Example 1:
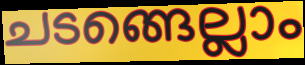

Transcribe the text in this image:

ചടങ്ങെല്ലാം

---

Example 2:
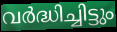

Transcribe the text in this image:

വർദ്ധിച്ചിട്ടും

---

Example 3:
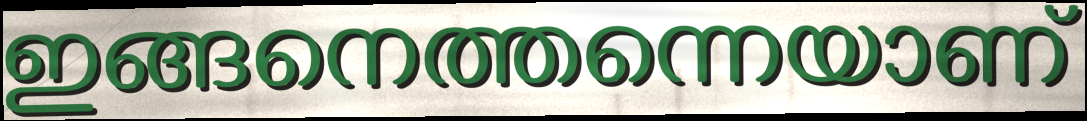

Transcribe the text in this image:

ഇങ്ങനെത്തന്നെയാണ്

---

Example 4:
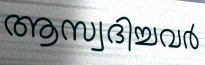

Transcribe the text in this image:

ആസ്വദിച്ചവർ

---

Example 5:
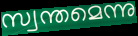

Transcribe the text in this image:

സ്വന്തമെന്നു